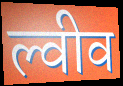
ल्वीव